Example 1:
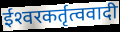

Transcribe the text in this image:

ईश्वरकर्तृत्ववादी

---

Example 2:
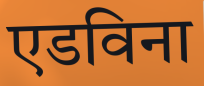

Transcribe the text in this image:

एडविना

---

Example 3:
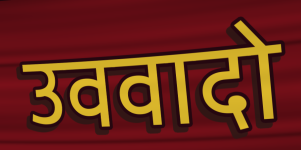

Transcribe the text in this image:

उववादो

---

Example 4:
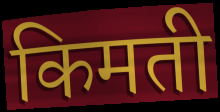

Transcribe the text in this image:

किमती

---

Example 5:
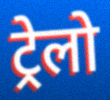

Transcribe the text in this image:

ट्रेलो